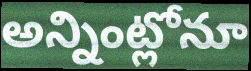
అన్నింట్లోనూ